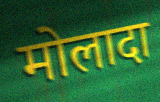
मोलादा